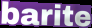
barite